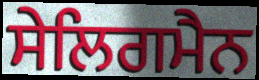
ਸੇਲਿਗਮੈਨ